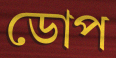
ডোপ